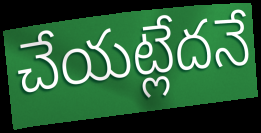
చేయట్లేదనే